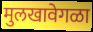
मुलखावेगळा